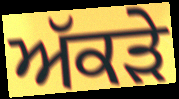
ਅੱਕੜੇ